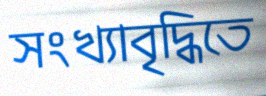
সংখ্যাবৃদ্ধিতে